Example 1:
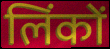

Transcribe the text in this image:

लिंकों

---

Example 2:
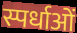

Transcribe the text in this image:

स्‍पर्धाओं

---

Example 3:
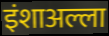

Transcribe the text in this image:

इंशाअल्ला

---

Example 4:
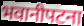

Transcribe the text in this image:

भवानीपटना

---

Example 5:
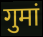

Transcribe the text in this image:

गुमां